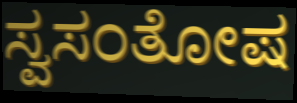
ಸ್ವಸಂತೋಷ